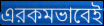
এরকমভাবেই